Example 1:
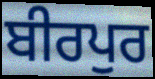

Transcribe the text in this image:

ਬੀਰਪੁਰ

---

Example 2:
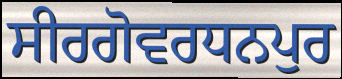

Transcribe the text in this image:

ਸੀਰਗੋਵਰਧਨਪੁਰ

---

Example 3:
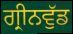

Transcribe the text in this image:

ਗ੍ਰੀਨਵੁੱਡ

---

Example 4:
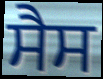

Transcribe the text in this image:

ਸੈਸ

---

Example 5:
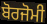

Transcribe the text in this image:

ਬੋਰਜੋਮੀ